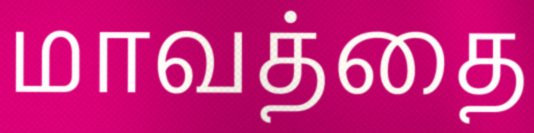
மாவத்தை